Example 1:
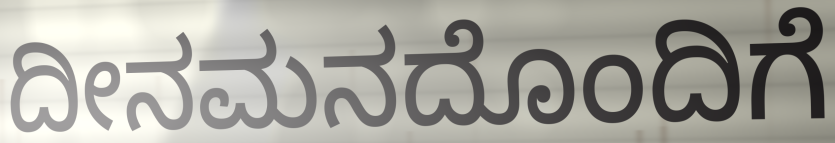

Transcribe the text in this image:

ದೀನಮನದೊಂದಿಗೆ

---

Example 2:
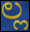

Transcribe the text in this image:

ಲ್ಲ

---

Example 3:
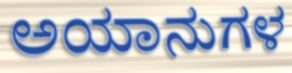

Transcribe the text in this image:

ಅಯಾನುಗಳ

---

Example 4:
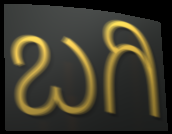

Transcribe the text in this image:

ಬಗಿ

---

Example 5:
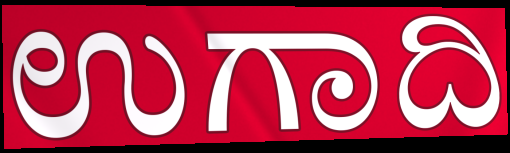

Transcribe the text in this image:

ಉಗಾದಿ